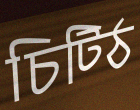
চিট্ঠি